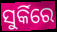
ସୁର୍କିରେ